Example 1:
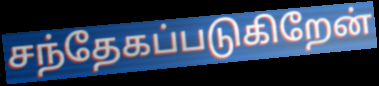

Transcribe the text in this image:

சந்தேகப்படுகிறேன்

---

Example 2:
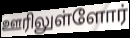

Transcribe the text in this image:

ஊரிலுள்ளோர்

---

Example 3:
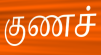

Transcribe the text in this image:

குணச்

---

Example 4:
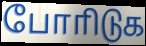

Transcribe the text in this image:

போரிடுக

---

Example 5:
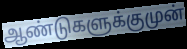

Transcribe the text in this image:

ஆண்டுகளுக்குமுன்